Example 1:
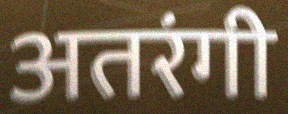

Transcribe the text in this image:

अतरंगी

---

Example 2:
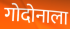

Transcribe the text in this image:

गोदोनाला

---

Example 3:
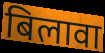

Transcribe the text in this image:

बिलावा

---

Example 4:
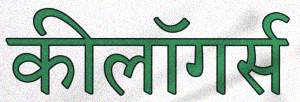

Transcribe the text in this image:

कीलॉगर्स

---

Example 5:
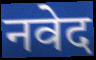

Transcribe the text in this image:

नवेद